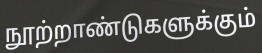
நூற்றாண்டுகளுக்கும்